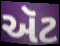
ઍટ